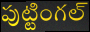
పుట్టింగల్